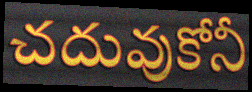
చదువుకోనీ